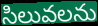
సిలువలను